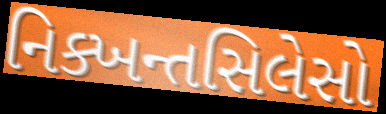
નિક્ખન્તસિલેસો